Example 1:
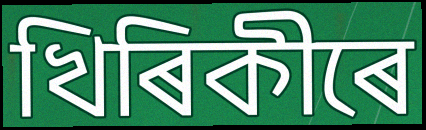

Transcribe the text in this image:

খিৰিকীৰে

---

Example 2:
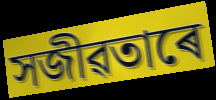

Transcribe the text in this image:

সজীৱতাৰে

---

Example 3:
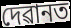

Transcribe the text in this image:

দেৱানত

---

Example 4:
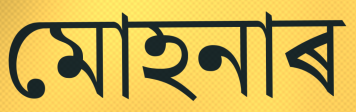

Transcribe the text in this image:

মোহনাৰ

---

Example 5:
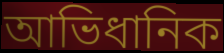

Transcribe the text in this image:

আভিধানিক